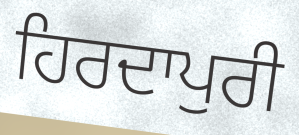
ਹਿਰਦਾਪੁਰੀ